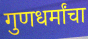
गुणधर्मांचा